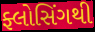
ફ્લોસિંગથી